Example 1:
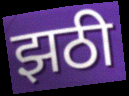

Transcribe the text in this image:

झठी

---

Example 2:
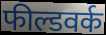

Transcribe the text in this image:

फील्डवर्क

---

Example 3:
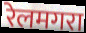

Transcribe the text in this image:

रेलमगरा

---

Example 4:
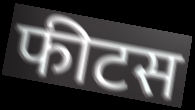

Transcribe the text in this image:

फीटस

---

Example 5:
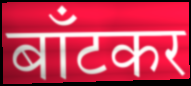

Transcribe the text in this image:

बाँटकर